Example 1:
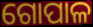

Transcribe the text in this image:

ଗୋପାଳ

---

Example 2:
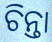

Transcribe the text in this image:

ଚିନ୍ତା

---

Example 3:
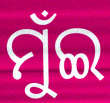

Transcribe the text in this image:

ମୁଁଇ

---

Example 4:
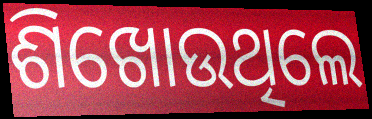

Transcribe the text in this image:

ଶିଖୋଉଥିଲେ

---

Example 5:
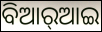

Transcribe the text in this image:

ବିଆର୍‌ଆଇ